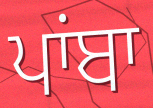
ਪਾਂਬਾ